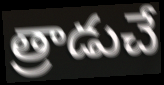
త్రాడుచే